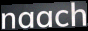
naach